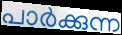
പാർക്കുന്ന